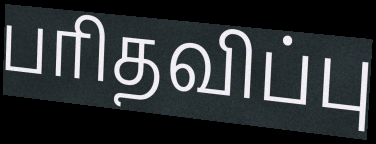
பரிதவிப்பு